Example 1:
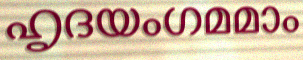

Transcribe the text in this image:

ഹൃദയംഗമമാം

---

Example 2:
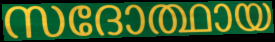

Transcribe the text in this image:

സദോത്ഥായ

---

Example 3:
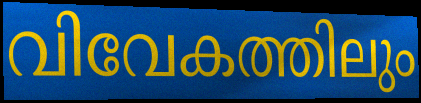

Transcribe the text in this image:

വിവേകത്തിലും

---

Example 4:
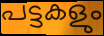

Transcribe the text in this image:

പട്ടകളും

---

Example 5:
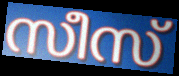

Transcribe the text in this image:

സീസ്